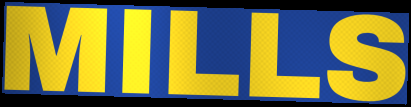
MILLS